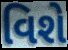
વિશે